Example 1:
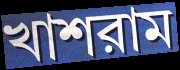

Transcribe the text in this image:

খাশরাম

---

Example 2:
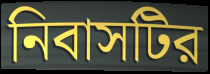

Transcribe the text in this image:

নিবাসটির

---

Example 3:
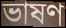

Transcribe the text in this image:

ভাষণ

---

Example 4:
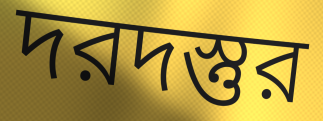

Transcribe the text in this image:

দরদস্তুর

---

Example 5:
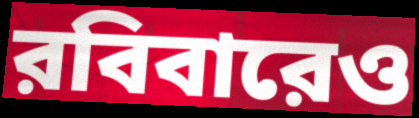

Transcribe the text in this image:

রবিবারেও